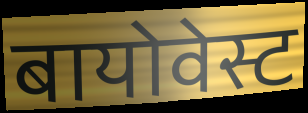
बायोवेस्ट